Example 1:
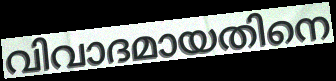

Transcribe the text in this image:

വിവാദമായതിനെ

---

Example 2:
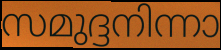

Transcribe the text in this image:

സമുദ്ദനിന്നാ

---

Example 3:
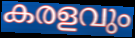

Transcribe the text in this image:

കരളവും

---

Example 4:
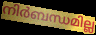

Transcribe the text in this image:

നിർബന്ധമില്ല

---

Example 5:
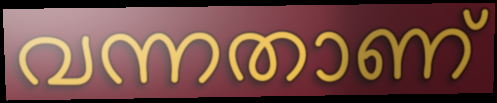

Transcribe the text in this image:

വന്നതാണ്